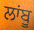
ਲਾਂਬੂ